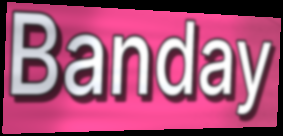
Banday